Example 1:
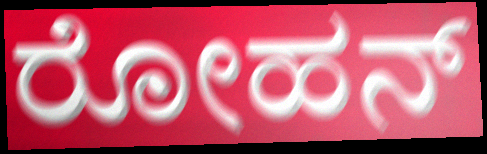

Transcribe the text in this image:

ರೋಹನ್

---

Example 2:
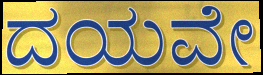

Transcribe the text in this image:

ದಯವೇ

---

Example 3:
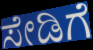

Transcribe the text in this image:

ಸೇಡಿಗೆ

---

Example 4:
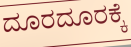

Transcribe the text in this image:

ದೂರದೂರಕ್ಕೆ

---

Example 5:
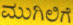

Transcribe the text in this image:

ಮುಗಿಲಿಗೆ